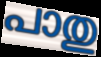
പാതു